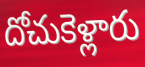
దోచుకెళ్లారు